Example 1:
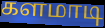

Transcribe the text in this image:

களமாடி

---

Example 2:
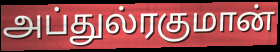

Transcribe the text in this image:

அப்துல்ரகுமான்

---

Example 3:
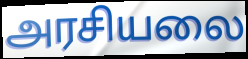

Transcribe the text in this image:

அரசியலை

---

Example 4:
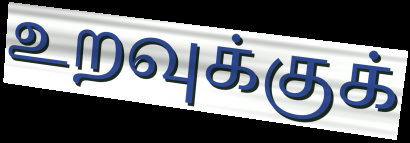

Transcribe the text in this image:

உறவுக்குக்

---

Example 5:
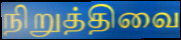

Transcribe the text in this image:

நிறுத்திவை